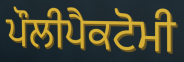
ਪੌਲੀਪੈਕਟੋਮੀ